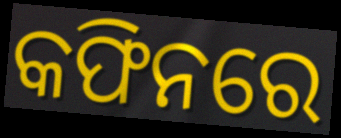
କଫିନରେ